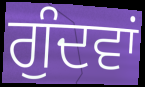
ਗੁੰਦਵਾਂ